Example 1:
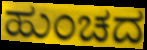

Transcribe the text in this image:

ಹುಂಚದ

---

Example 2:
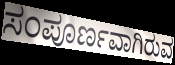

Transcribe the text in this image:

ಸಂಪೂರ್ಣವಾಗಿರುವ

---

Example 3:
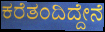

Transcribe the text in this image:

ಕರೆತಂದಿದ್ದೇನೆ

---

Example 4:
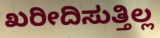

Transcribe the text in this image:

ಖರೀದಿಸುತ್ತಿಲ್ಲ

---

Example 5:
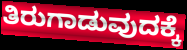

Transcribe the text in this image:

ತಿರುಗಾಡುವುದಕ್ಕೆ